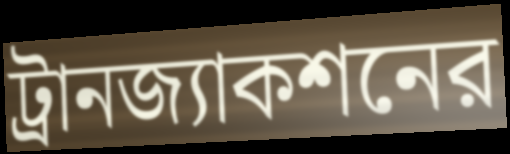
ট্রানজ্যাকশনের